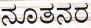
ನೂತನರ